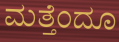
ಮತ್ತೆಂದೂ